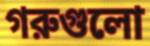
গরুগুলো